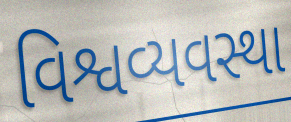
વિશ્વવ્યવસ્થા